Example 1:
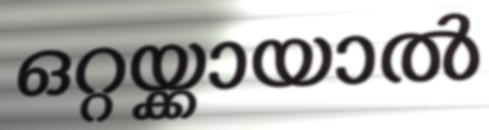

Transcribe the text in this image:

ഒറ്റയ്ക്കായാൽ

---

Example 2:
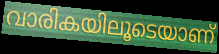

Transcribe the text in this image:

വാരികയിലൂടെയാണ്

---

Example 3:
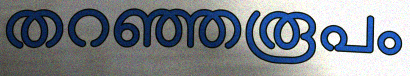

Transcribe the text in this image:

തറഞ്ഞരൂപം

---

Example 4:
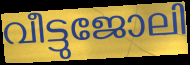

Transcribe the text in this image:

വീട്ടുജോലി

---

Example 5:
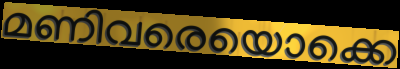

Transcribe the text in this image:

മണിവരെയൊക്കെ